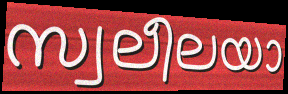
സ്വലീലയാ